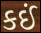
કઈં